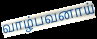
வாழ்பவனாய்